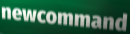
newcommand